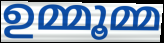
ഉമ്മൂമ്മ